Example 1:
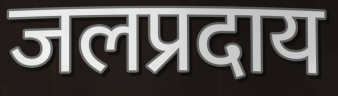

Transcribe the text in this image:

जलप्रदाय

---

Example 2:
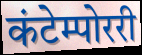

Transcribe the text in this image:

कंटेम्पोररी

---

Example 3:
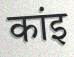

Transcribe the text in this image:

कांइ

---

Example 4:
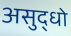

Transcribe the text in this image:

असुद्धो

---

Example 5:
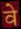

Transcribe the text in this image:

वे